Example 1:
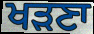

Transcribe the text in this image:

ਖੜਣਾ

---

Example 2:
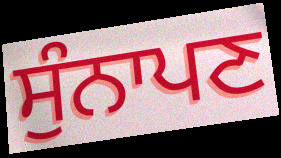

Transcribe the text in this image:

ਸੁੰਨਾਪਣ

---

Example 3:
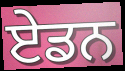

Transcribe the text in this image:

ਏਡਨ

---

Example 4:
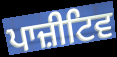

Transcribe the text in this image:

ਪਾਜ਼ੀਟਿਵ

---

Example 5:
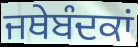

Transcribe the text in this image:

ਜਥੇਬੰਦਕਾਂ